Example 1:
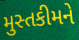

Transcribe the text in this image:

મુસ્તકીમને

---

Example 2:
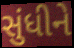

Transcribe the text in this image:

સુંધીને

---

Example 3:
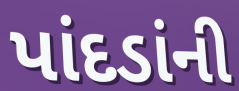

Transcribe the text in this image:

પાંદડાંની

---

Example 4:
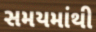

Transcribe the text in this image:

સમયમાંથી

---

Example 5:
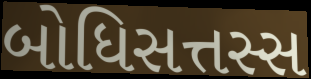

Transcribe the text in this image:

બોધિસત્તસ્સ